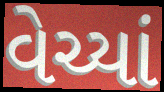
વેચ્યાં